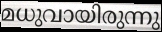
മധുവായിരുന്നു